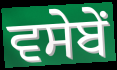
ਵਸੇਬੇਂ